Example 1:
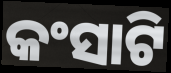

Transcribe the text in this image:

କଂସାଟି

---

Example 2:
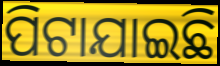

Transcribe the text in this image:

ପିଟାଯାଇଛି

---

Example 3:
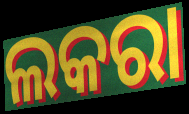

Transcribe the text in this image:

ଲକରା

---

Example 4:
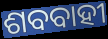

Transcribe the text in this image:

ଶବବାହୀ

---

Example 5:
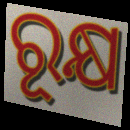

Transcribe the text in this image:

ରୂକ୍ଷ